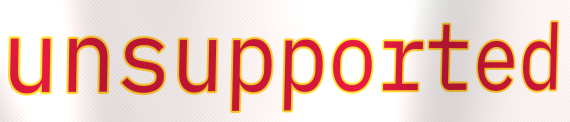
unsupported